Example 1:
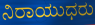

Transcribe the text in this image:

ನಿರಾಯುಧರು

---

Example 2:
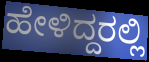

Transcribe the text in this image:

ಹೇಳಿದ್ದರಲ್ಲಿ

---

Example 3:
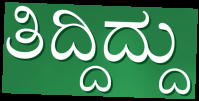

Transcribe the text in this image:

ತಿದ್ದಿದ್ದು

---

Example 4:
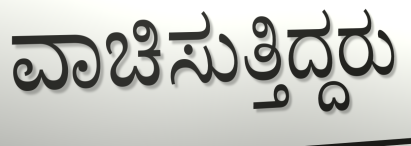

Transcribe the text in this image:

ವಾಚಿಸುತ್ತಿದ್ದರು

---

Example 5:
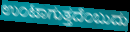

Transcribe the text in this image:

ಉಂಟಾಗುತ್ತದೆಂಬುದು